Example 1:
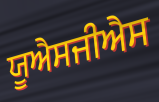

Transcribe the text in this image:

ਯੂਐਸਜੀਐਸ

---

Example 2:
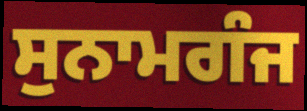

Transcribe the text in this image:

ਸੁਨਾਮਗੰਜ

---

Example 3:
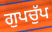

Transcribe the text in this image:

ਗੁਪਚੁੱਪ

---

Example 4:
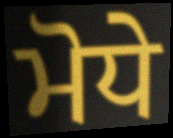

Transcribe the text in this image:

ਮੋਧੇ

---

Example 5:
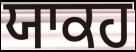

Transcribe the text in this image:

ਯਾਕਹ